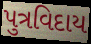
પુત્રવિદાય